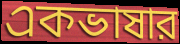
একভাষার